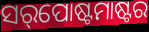
ସର୍‌ପୋଷ୍ଟମାଷ୍ଟର